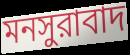
মনসুরাবাদ